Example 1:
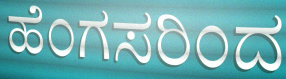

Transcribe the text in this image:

ಹೆಂಗಸರಿಂದ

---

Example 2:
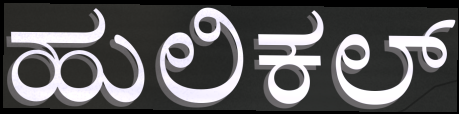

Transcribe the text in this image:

ಹುಲಿಕಲ್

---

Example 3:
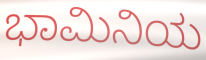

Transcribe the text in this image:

ಭಾಮಿನಿಯ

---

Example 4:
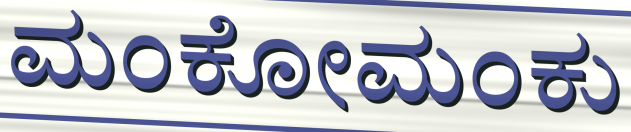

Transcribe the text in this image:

ಮಂಕೋಮಂಕು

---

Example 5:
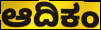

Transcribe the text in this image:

ಆದಿಕಂ